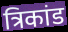
त्रिकांड